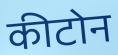
कीटोन